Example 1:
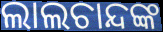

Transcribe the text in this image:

ଲାଲଚାନ୍ଦଙ୍କ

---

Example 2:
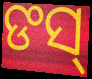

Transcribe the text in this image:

ଙସ୍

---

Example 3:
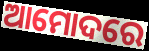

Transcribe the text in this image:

ଆମୋଦରେ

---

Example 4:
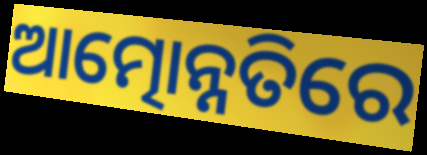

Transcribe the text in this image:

ଆତ୍ମୋନ୍ନତିରେ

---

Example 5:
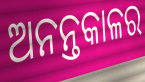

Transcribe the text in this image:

ଅନନ୍ତକାଳର